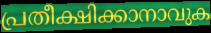
പ്രതീക്ഷിക്കാനാവുക